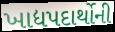
ખાદ્યપદાર્થોની